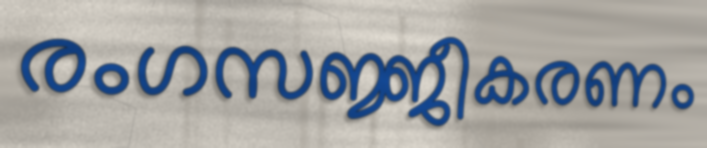
രംഗസജ്ജീകരണം